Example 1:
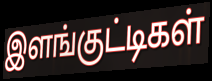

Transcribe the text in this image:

இளங்குட்டிகள்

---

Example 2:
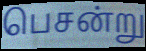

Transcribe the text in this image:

பெசன்று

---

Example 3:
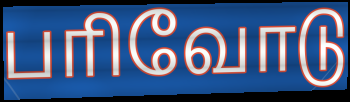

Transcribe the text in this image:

பரிவோடு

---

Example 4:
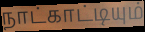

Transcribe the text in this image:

நாட்காட்டியும்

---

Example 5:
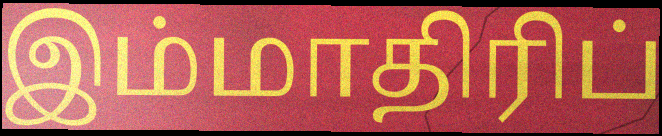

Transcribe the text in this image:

இம்மாதிரிப்